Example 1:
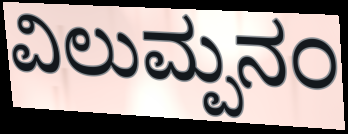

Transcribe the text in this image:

ವಿಲುಮ್ಪನಂ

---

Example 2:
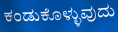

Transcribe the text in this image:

ಕಂಡುಕೊಳ್ಳುವುದು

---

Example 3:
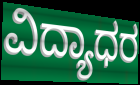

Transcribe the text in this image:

ವಿದ್ಯಾಧರ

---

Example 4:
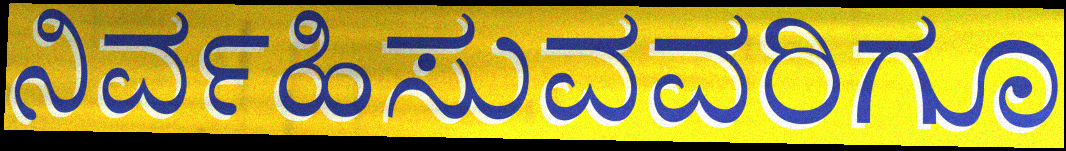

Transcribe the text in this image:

ನಿರ್ವಹಿಸುವವರಿಗೂ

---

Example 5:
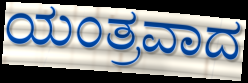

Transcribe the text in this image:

ಯಂತ್ರವಾದ